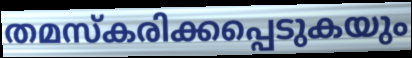
തമസ്കരിക്കപ്പെടുകയും